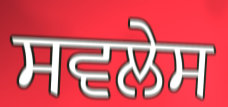
ਸਵਲੇਸ